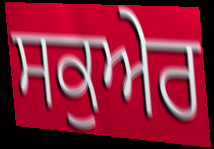
ਸਕੁਅੇਰ